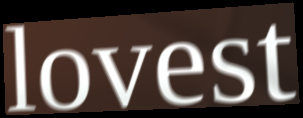
lovest